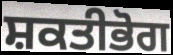
ਸ਼ਕਤੀਭੋਗ